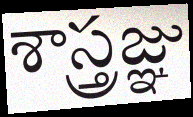
శాస్త్రజ్ఞు